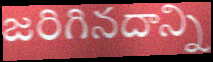
జరిగినదాన్ని